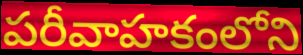
పరీవాహకంలోని